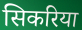
सिकरिया